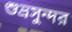
শুভ্রসুন্দর